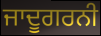
ਜਾਦੂਗਰਨੀ